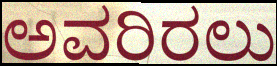
ಅವರಿರಲು